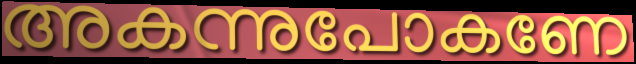
അകന്നുപോകണേ